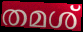
തമശ്